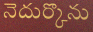
నెదుర్కొను